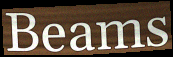
Beams